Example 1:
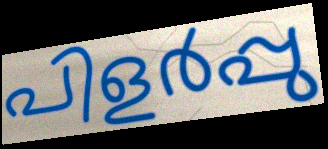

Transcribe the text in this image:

പിളർപ്പു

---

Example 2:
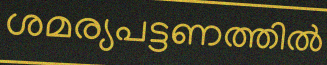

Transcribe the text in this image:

ശമര്യപട്ടണത്തിൽ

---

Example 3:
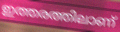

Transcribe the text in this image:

ഇത്തരത്തിലാണ്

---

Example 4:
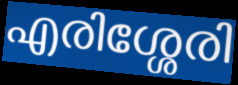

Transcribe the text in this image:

എരിശ്ശേരി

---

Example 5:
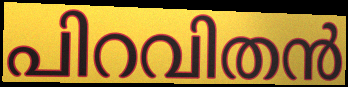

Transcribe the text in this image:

പിറവിതൻ